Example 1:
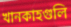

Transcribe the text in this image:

খানকাহগুলি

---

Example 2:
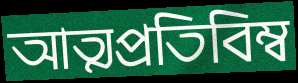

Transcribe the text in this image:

আত্মপ্রতিবিম্ব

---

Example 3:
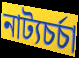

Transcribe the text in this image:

নাট্যচর্চা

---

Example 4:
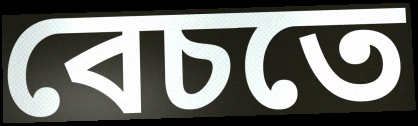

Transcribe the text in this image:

বেচতে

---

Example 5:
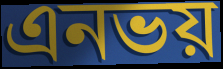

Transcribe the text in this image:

এনভয়